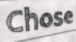
Chose